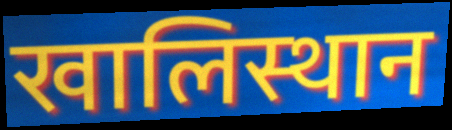
खालिस्थान